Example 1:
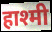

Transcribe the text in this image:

हाश्मी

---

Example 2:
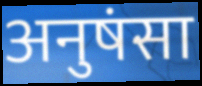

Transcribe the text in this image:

अनुषंसा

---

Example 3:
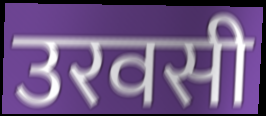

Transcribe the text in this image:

उरवसी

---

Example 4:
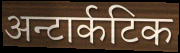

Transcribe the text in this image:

अन्टार्कटिक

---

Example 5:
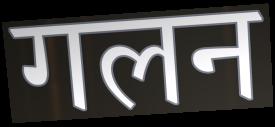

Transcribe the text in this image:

गलन